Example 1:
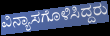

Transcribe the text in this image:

ವಿನ್ಯಾಸಗೊಳಿಸಿದ್ದರು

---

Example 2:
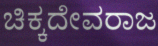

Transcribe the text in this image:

ಚಿಕ್ಕದೇವರಾಜ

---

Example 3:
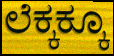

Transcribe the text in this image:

ಲೆಕ್ಕಕ್ಕೂ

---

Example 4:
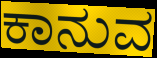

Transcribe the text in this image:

ಕಾನುವ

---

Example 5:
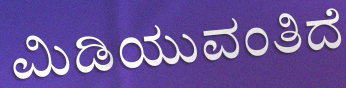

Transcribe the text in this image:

ಮಿಡಿಯುವಂತಿದೆ